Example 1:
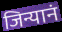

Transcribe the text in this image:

जिन्यानं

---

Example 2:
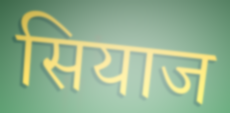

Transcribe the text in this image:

सियाज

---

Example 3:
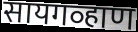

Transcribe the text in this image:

सायगव्हाण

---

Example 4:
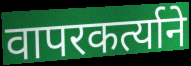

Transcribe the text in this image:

वापरकर्त्याने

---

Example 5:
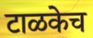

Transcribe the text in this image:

टाळकेच